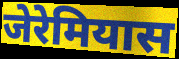
जेरेमियास